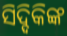
ସିଦ୍ଦିକିଙ୍କ